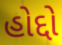
હોદ્દો